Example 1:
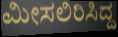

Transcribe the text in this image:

ಮೀಸಲಿರಿಸಿದ್ದ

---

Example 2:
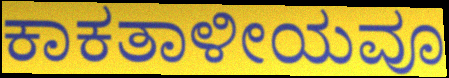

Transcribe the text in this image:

ಕಾಕತಾಳೀಯವೂ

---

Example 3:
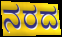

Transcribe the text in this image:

ನರದ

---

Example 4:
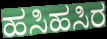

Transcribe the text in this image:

ಹಸಿಹಸಿರ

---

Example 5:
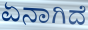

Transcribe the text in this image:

ಏನಾಗಿದೆ